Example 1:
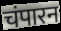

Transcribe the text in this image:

चंपारन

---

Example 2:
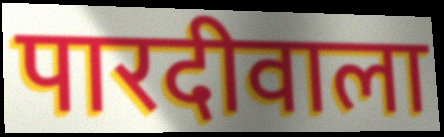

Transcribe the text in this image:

पारदीवाला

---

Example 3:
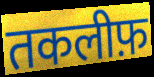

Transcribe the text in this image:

तकलीफ़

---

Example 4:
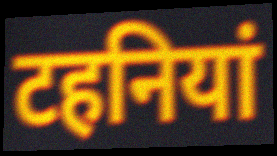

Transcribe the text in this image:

टहनियां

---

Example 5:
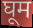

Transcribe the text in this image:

घूम